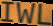
IWL